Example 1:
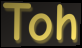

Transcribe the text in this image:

Toh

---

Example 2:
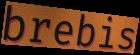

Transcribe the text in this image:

brebis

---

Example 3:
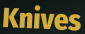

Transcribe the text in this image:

Knives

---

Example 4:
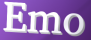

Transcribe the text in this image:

Emo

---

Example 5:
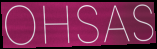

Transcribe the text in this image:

OHSAS